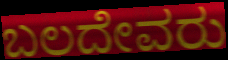
ಬಲದೇವರು